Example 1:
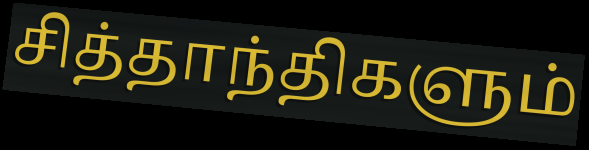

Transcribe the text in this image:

சித்தாந்திகளும்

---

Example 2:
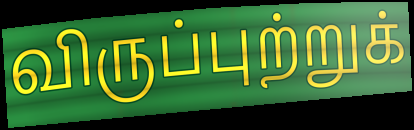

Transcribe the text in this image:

விருப்புற்றுக்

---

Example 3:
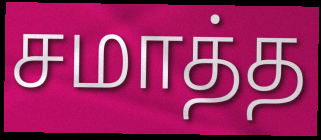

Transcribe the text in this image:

சமாத்த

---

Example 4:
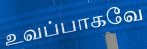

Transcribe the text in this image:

உவப்பாகவே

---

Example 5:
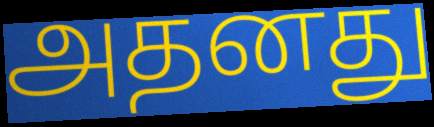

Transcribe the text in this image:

அதனது